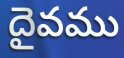
దైవము